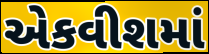
એકવીશમાં